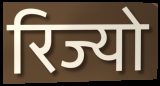
रिज्यो